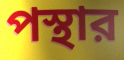
পস্থার